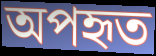
অপহৃত